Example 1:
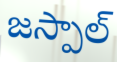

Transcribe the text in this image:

జస్పాల్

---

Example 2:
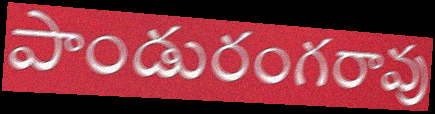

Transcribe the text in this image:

పాండురంగరావు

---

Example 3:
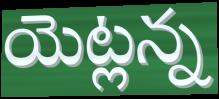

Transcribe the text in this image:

యెట్లన్న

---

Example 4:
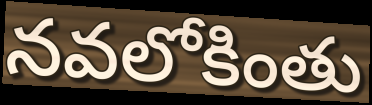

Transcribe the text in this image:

నవలోకింతు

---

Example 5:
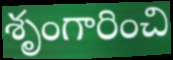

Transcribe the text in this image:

శృంగారించి